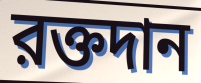
রক্তদান